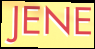
JENE